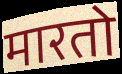
मारतो